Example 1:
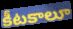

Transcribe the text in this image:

కీటకాలూ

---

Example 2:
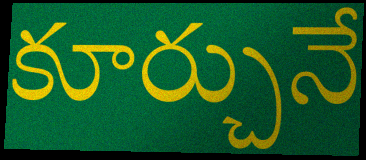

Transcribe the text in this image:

కూర్చునే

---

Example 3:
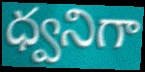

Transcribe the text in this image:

ధ్వనిగా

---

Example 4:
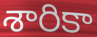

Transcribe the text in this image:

శారికా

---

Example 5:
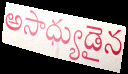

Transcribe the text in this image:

అసాధ్యుడైన